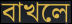
বাখলে